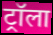
ट्रॉला